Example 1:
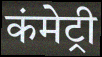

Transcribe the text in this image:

कंमेट्री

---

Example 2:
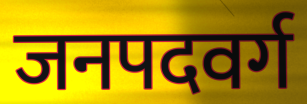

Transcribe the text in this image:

जनपदवर्ग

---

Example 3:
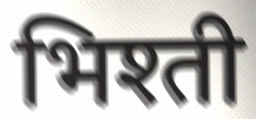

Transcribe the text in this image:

भिश्ती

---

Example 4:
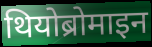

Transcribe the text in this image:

थियोब्रोमाइन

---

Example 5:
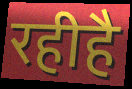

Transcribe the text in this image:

रहीहै